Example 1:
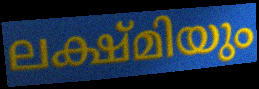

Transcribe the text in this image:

ലക്ഷ്മിയും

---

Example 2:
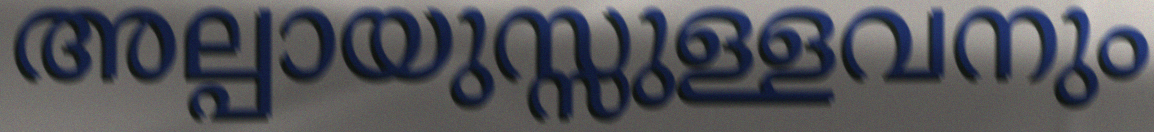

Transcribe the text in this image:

അല്പായുസ്സുള്ളവനും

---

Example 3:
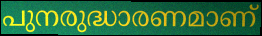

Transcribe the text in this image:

പുനരുദ്ധാരണമാണ്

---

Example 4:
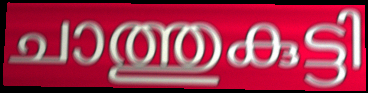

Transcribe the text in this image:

ചാത്തുകുട്ടി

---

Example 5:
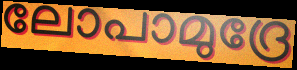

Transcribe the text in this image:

ലോപാമുദ്രേ